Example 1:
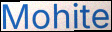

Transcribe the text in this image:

Mohite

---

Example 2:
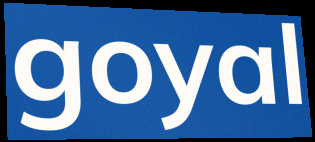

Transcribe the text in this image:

goyal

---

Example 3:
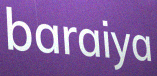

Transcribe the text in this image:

baraiya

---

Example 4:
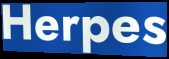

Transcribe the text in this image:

Herpes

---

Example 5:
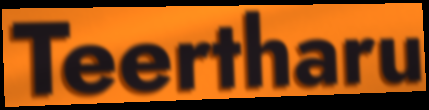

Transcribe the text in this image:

Teertharu